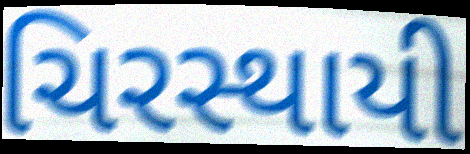
ચિરસ્થાયી